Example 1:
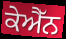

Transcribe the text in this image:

ਕੇਐੱਨ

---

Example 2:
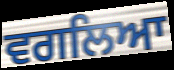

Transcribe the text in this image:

ਵਗਲਿਆ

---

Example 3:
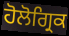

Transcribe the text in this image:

ਹੋਲੋਗ੍ਰਿਕ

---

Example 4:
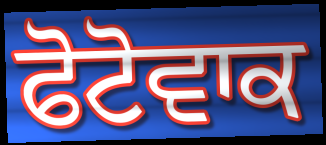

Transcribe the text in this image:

ਫੋਟੋਵਾਕ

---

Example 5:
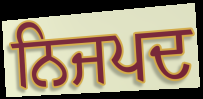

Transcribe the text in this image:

ਨਿਜਪਦ